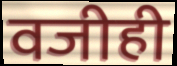
वजीही